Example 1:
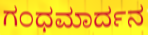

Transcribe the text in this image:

ಗಂಧಮಾರ್ದನ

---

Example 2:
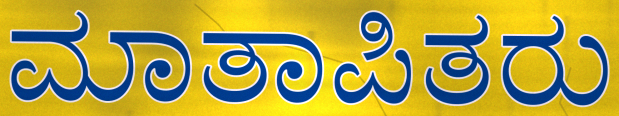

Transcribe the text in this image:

ಮಾತಾಪಿತರು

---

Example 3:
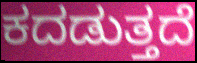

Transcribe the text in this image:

ಕದಡುತ್ತದೆ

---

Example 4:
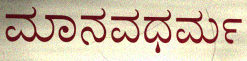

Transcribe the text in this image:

ಮಾನವಧರ್ಮ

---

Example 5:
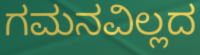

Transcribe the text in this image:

ಗಮನವಿಲ್ಲದ